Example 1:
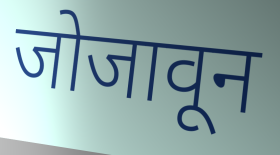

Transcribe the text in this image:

जोजावून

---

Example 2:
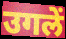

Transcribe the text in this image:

उगलें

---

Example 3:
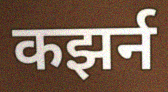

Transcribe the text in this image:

कझर्न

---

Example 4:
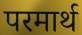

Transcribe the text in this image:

परमार्थ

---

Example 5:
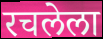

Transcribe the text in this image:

रचलेला